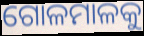
ଗୋଳମାଳକୁ